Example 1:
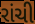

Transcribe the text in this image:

રાંચી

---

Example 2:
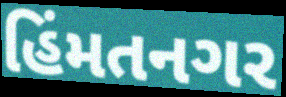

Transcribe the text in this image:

હિંમતનગર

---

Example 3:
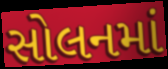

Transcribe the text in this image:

સોલનમાં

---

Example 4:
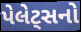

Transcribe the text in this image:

પેલેટ્સનો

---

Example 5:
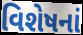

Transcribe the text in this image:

વિશેષનાં